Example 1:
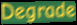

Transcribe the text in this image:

Degrade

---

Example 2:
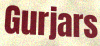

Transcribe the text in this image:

Gurjars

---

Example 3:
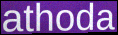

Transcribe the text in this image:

athoda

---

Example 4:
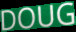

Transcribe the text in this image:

DOUG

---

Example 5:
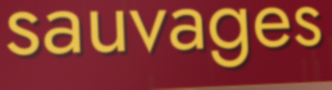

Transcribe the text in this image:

sauvages